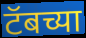
टॅबच्या